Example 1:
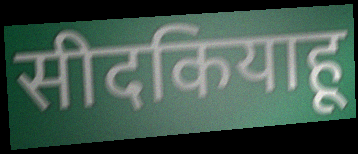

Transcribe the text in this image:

सीदकियाहू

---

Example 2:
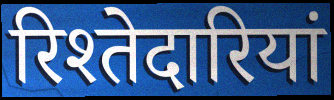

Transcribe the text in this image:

रिश्तेदारियां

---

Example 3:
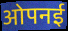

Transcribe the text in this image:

ओपनई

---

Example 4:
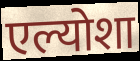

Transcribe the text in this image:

एल्योशा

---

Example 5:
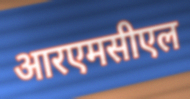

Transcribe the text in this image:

आरएमसीएल